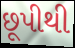
છૂપીથી